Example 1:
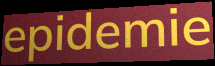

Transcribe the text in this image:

epidemie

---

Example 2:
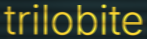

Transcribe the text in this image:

trilobite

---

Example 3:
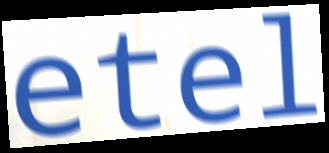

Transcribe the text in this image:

etel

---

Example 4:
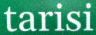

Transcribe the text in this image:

tarisi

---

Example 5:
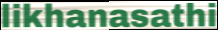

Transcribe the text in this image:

likhanasathi